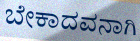
ಬೇಕಾದವನಾಗಿ